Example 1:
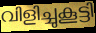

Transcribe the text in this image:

വിളിച്ചുകൂട്ടി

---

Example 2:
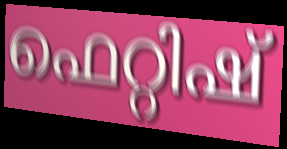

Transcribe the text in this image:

ഫെറ്റിഷ്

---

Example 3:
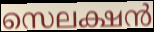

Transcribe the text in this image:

സെലക്ഷൻ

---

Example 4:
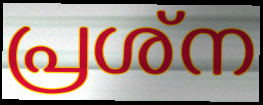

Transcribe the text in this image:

പ്രശ്‌ന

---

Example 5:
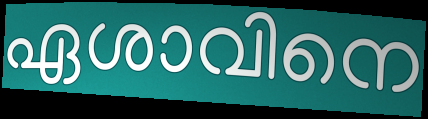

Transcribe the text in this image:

ഏശാവിനെ